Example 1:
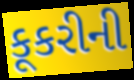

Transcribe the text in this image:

કૂકરીની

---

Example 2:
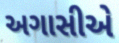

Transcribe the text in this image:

અગાસીએ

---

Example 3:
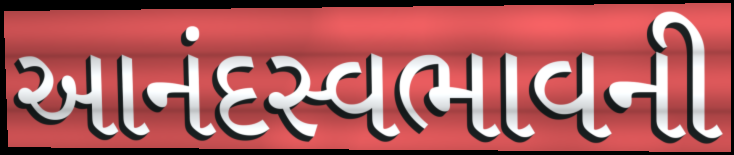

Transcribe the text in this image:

આનંદસ્વભાવની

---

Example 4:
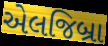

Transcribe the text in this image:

એલજિબ્રા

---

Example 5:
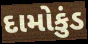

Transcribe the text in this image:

દામોકુંડ